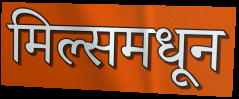
मिल्समधून